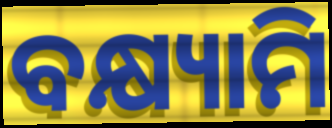
ବକ୍ଷ୍ୟାମି